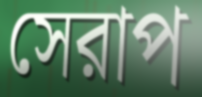
সেরাপ